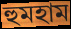
হুমহাম